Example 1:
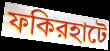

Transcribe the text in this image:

ফকিরহাটে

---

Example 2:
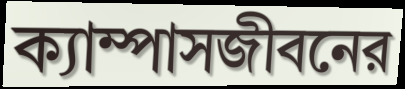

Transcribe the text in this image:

ক্যাম্পাসজীবনের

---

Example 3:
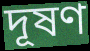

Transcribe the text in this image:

দূষণ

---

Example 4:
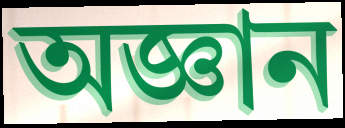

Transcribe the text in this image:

অজ্ঞান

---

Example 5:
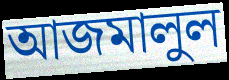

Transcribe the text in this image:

আজমালুল